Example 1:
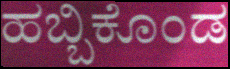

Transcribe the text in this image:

ಹಬ್ಬಿಕೊಂಡ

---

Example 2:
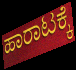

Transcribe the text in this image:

ಹಾರಾಟಕ್ಕೆ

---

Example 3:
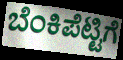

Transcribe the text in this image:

ಬೆಂಕಿಪೆಟ್ಟಿಗೆ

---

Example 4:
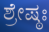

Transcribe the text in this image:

ಶ್ರೇಷ್ಠಃ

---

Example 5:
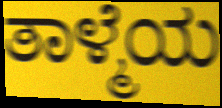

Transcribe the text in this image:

ತಾಳ್ಮೆಯ